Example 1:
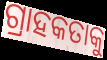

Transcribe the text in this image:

ଗ୍ରାହକତାକୁ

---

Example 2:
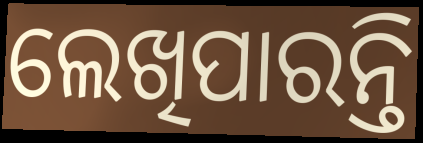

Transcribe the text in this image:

ଲେଖିପାରନ୍ତି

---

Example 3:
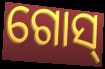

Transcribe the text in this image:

ଗୋସ୍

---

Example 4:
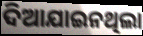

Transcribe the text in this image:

ଦିଆଯାଇନଥିଲା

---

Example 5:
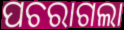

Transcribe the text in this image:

ପଚରାଗଲା